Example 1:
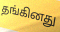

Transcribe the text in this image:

தங்கினது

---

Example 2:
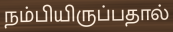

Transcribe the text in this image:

நம்பியிருப்பதால்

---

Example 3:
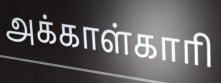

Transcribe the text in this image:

அக்காள்காரி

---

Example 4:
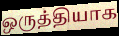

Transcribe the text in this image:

ஒருத்தியாக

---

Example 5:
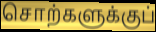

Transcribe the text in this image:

சொற்களுக்குப்